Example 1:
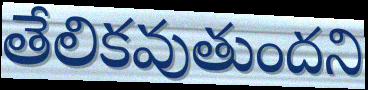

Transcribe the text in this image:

తేలికవుతుందని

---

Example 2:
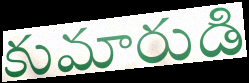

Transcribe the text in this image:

కుమారుడి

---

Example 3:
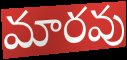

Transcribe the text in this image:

మారవు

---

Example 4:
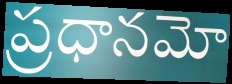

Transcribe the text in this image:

ప్రధానమో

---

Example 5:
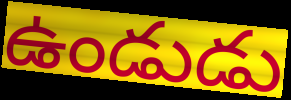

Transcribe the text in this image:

ఉండుడు